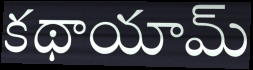
కథాయామ్